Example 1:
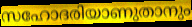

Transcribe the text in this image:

സഹോദരിയാണുതാനും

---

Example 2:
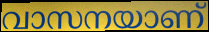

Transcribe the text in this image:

വാസനയാണ്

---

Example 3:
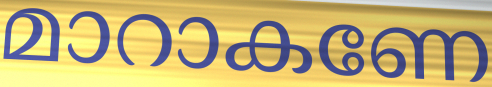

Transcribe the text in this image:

മാറാകണേ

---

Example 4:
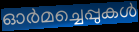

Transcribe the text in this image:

ഓർമച്ചെപ്പുകൾ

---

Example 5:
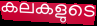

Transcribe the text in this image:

കലകളുടെ